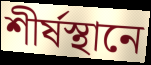
শীর্ষস্থানে